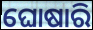
ଘୋଷାରି